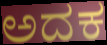
ಅದಕ